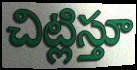
చిట్లిస్తూ